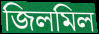
জিলমিল